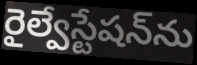
రైల్వేస్టేషన్‌ను